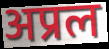
अप्रल